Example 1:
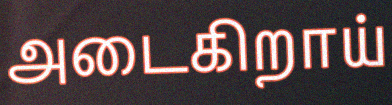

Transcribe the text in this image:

அடைகிறாய்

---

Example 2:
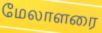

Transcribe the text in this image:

மேலாளரை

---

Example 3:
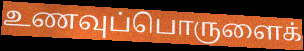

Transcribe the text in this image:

உணவுப்பொருளைக்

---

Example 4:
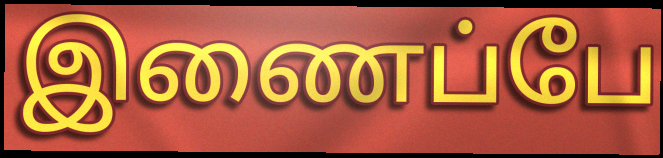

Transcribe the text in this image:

இணைப்பே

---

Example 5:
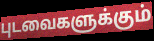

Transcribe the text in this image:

புடவைகளுக்கும்